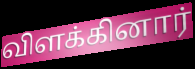
விளக்கினார்